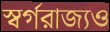
স্বর্গরাজ্যও